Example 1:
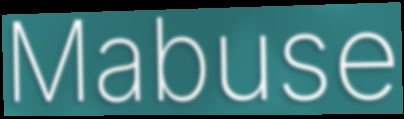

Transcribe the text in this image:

Mabuse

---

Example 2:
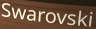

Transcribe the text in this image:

Swarovski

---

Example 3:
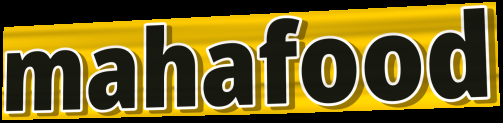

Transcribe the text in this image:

mahafood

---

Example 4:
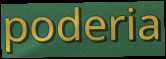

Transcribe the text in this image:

poderia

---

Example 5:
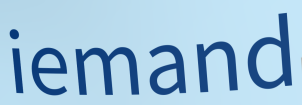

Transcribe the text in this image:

iemand